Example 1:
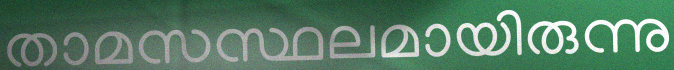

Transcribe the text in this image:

താമസസ്ഥലമായിരുന്നു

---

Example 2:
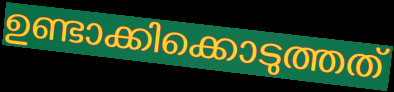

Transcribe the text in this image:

ഉണ്ടാക്കിക്കൊടുത്തത്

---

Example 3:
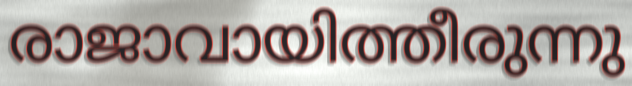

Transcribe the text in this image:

രാജാവായിത്തീരുന്നു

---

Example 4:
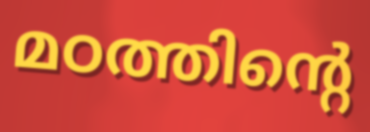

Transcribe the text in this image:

മഠത്തിന്റെ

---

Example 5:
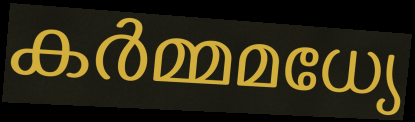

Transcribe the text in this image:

കർമ്മമധ്യേ